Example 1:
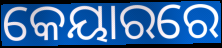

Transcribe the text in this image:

କେୟାରରେ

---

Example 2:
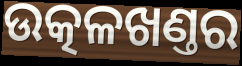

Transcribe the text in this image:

ଉତ୍କଳଖଣ୍ତର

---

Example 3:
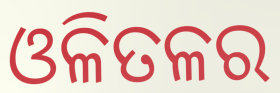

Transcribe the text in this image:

ଓଳିତଳର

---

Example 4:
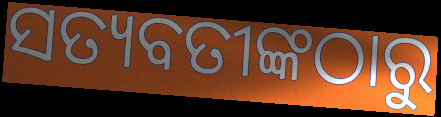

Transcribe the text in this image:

ସତ୍ୟବତୀଙ୍କଠାରୁ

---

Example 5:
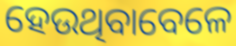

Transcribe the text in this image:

ହେଉଥିବାବେଳେ